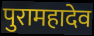
पुरामहादेव